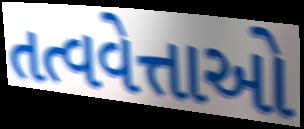
તત્વવેત્તાઓ